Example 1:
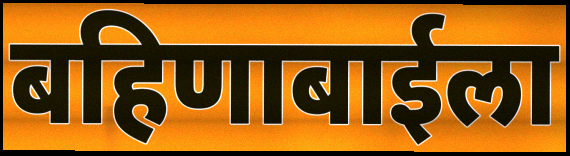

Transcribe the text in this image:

बहिणाबाईला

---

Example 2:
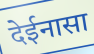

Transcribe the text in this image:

देईनासा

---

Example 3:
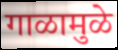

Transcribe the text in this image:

गाळामुळे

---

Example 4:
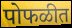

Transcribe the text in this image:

पोफळीत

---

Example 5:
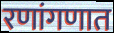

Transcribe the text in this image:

रणांगणात